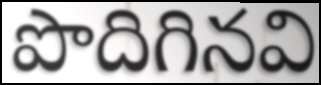
పొదిగినవి